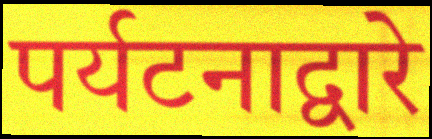
पर्यटनाद्वारे